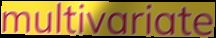
multivariate